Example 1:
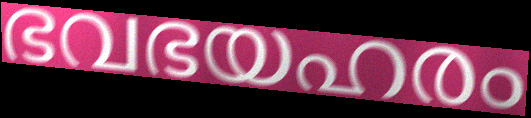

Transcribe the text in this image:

ഭവഭയഹരം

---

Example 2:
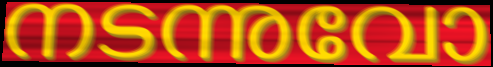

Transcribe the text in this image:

നടന്നുവോ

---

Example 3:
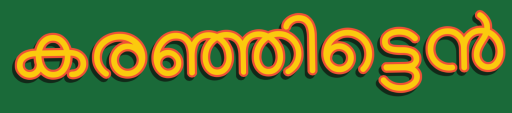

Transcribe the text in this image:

കരഞ്ഞിട്ടെൻ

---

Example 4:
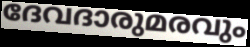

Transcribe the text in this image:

ദേവദാരുമരവും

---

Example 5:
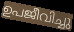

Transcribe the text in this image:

ഉപജീവിച്ചു